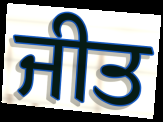
ਜੀਤ